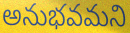
అనుభవమని